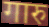
गारु